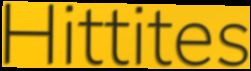
Hittites